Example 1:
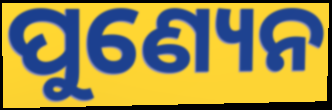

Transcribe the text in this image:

ପୁଣ୍ୟେନ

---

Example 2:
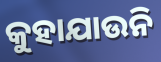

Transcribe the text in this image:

କୁହାଯାଉନି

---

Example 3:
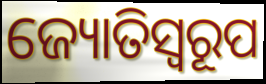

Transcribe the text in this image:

ଜ୍ୟୋତିସ୍ୱରୂପ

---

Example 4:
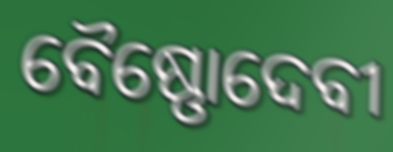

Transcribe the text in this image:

ବୈଷ୍ଣୋଦେବୀ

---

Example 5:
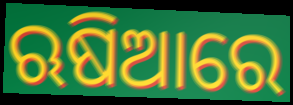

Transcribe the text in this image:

ଋଷିଆରେ